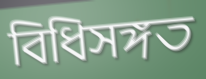
বিধিসঙ্গত